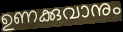
ഉണക്കുവാനും